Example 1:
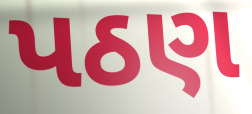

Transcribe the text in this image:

પઠણ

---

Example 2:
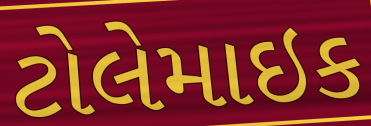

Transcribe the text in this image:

ટોલેમાઇક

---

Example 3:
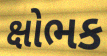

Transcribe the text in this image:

ક્ષોભક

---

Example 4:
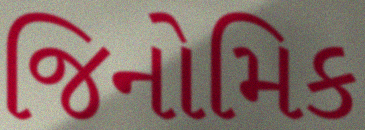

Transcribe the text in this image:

જિનોમિક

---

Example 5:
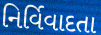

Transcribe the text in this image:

નિર્વિવાદતા